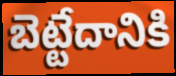
బెట్టేదానికి